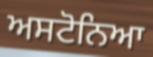
ਅਸਟੋਨਿਆ